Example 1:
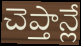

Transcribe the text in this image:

చెప్తాన్లే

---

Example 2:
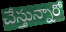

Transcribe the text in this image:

చేస్తున్నారో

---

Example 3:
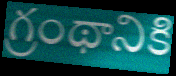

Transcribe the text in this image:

గ్రంథానికి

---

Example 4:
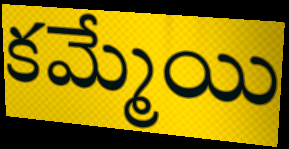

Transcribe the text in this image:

కమ్మేయి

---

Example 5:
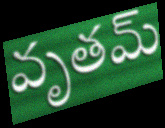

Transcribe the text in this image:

వృతమ్